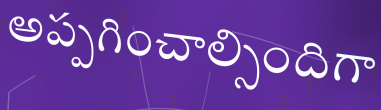
అప్పగించాల్సిందిగా